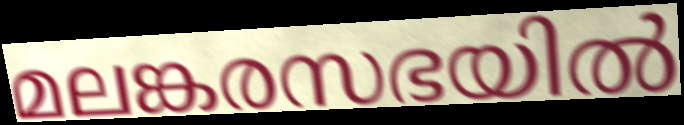
മലങ്കരസഭയിൽ